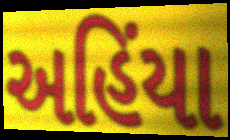
અહિંયા